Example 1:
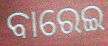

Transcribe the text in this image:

ବାରେଇ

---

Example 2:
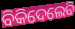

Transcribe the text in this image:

ବିକିଦେଲେବି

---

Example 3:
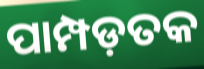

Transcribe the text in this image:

ପାମ୍ପଡ଼ତକ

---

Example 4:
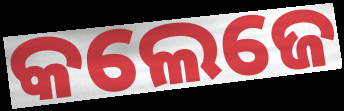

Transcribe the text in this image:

କଲେଜେ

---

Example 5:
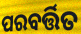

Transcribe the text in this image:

ପରବର୍ତ୍ତିତ